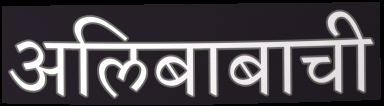
अलिबाबाची